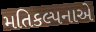
મતિકલ્પનાએ